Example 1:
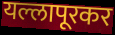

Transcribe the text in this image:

यल्लापूरकर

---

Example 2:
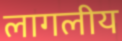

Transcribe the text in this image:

लागलीय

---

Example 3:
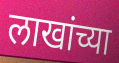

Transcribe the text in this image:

लाखांच्या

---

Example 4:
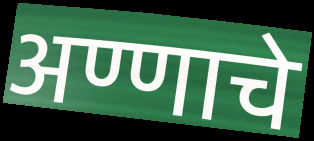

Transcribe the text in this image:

अण्णाचे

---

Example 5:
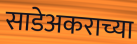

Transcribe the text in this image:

साडेअकराच्या